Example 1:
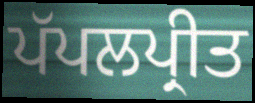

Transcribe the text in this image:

ਪੱਪਲਪ੍ਰੀਤ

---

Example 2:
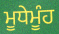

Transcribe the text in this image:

ਮੂਧੇਮੂੰਹ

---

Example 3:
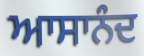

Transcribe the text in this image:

ਆਸਾਨੰਦ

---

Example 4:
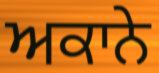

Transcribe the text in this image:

ਅਕਾਨੇ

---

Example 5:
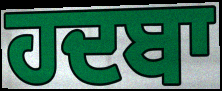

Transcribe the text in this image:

ਹਦਬਾ